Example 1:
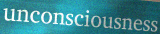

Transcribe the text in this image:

unconsciousness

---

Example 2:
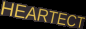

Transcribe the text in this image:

HEARTECT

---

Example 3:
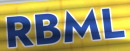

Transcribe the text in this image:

RBML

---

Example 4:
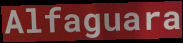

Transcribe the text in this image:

Alfaguara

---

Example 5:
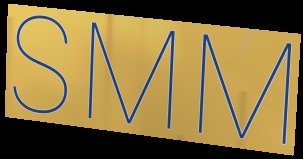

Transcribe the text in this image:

SMM